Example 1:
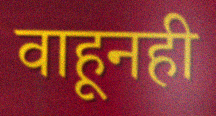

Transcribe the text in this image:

वाहूनही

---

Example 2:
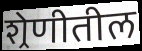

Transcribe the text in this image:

श्रेणीतील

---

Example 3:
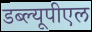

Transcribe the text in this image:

डब्ल्यूपीएल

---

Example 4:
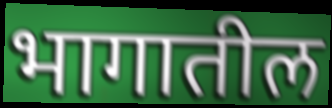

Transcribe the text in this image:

भागातील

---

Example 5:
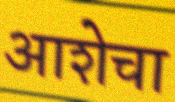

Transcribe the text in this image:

आशेचा